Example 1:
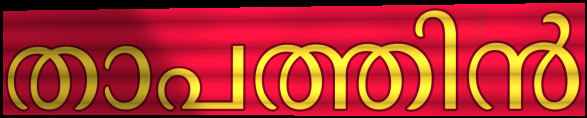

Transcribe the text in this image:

താപത്തിൻ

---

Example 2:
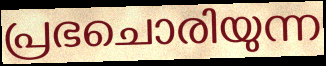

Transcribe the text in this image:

പ്രഭചൊരിയുന്ന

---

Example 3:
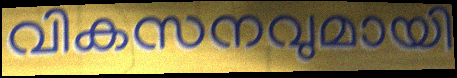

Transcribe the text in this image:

വികസനവുമായി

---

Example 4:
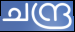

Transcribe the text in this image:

ചന്ദ്ര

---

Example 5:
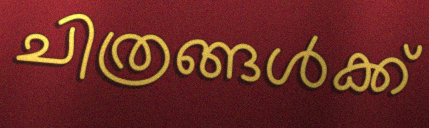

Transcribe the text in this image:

ചിത്രങ്ങൾക്ക്